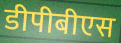
डीपीबीएस